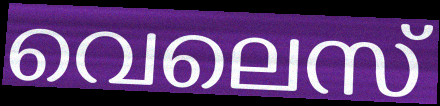
വെലെസ്